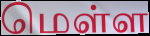
மெள்ள